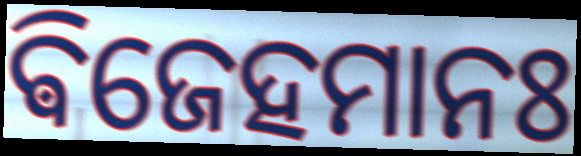
ଵିଜେହମାନଃ